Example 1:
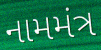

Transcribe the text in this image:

નામમંત્ર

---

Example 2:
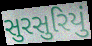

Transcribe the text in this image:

સુરસુરિયું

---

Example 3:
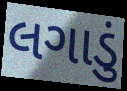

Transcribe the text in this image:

લગાડું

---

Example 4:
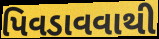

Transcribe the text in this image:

પિવડાવવાથી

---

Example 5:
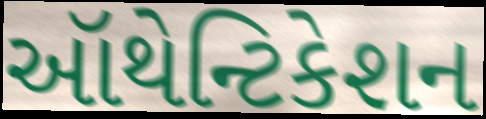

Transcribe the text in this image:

ઑથેન્ટિકેશન